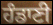
ਹੰਡਾਣੀ